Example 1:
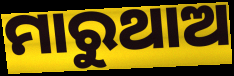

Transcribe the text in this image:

ମାରୁଥାଅ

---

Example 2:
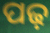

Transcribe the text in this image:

ପଢ଼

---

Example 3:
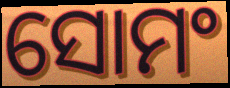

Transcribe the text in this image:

ସୋମଂ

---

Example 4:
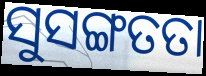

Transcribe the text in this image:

ସୁସଙ୍ଗତତା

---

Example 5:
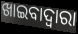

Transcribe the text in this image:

ଖାଇବାଦ୍ୱାରା